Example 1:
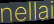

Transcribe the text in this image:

nellai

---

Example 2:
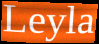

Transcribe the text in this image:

Leyla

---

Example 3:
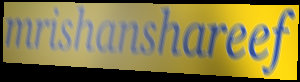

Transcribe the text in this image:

mrishanshareef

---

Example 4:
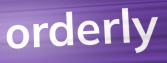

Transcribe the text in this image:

orderly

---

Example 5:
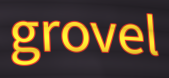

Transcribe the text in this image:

grovel